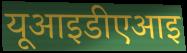
यूआइडीएआइ